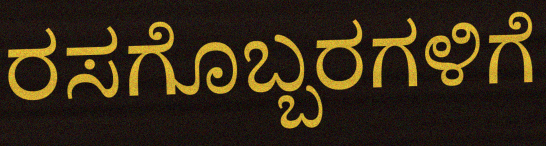
ರಸಗೊಬ್ಬರಗಳಿಗೆ